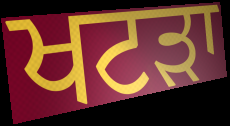
ਖਟੜਾ